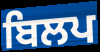
ਬਿਲਪ